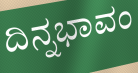
ದಿನ್ನಭಾವಂ